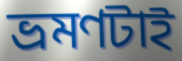
ভ্রমণটাই